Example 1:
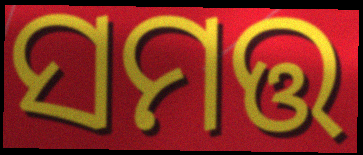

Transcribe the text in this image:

ସମତ୍ତ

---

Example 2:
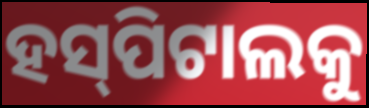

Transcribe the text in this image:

ହସ୍‌ପିଟାଲକୁ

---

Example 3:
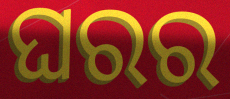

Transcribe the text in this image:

ଘରର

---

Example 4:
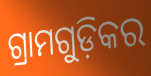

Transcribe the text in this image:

ଗ୍ରାମଗୁଡ଼ିକର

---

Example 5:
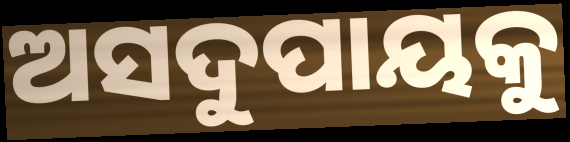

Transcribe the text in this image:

ଅସଦୁପାୟକୁ